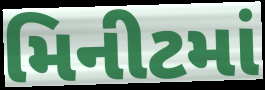
મિનીટમાં